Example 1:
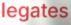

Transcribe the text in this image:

legates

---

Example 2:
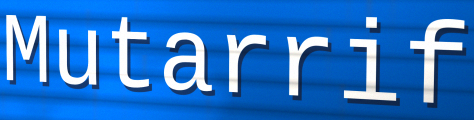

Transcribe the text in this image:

Mutarrif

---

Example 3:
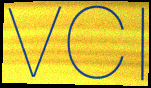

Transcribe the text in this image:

VCI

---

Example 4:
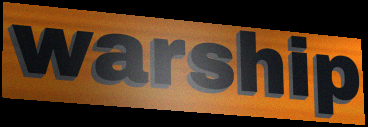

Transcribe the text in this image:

warship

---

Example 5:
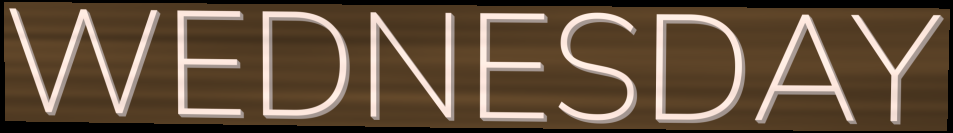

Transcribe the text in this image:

WEDNESDAY